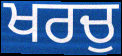
ਖਰਚੁ